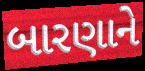
બારણાને